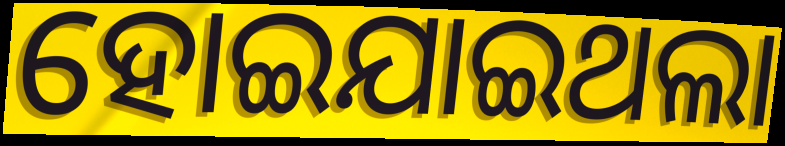
ହୋଇଯାଇଥଲା